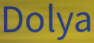
Dolya